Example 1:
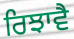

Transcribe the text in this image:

ਰਿਝਾਵੈ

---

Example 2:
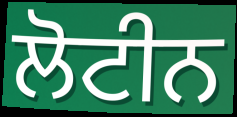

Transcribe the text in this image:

ਲੋਟੀਨ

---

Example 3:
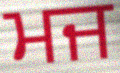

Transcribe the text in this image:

ਮਜ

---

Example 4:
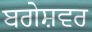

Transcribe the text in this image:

ਬਗੇਸ਼ਵਰ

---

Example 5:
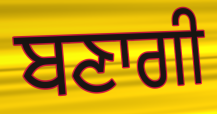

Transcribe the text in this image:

ਬਣਾਗੀ